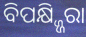
ବିପକ୍ଷ୍ଜ୍ଜିରା